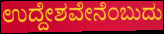
ಉದ್ದೇಶವೇನೆಂಬುದು